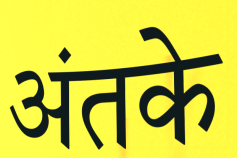
अंतके